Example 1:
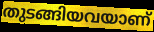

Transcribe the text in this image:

തുടങ്ങിയവയാണ്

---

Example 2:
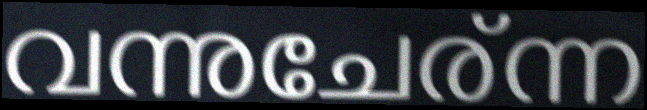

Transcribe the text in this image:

വന്നുചേര്ന്ന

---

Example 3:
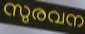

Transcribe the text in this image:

സുരവന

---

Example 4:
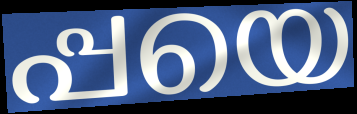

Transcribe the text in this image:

പ്പയെ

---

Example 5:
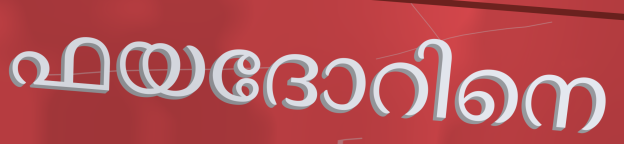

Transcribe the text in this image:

ഫയദോറിനെ